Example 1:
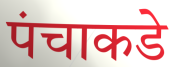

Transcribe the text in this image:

पंचाकडे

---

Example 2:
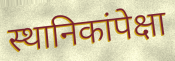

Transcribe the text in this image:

स्थानिकांपेक्षा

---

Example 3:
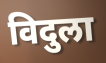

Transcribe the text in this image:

विदुला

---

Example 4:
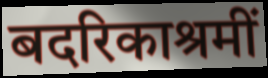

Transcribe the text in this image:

बदरिकाश्रमीं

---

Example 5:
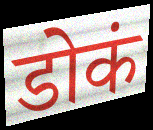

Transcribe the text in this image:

डोकं